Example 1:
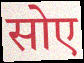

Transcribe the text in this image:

सोए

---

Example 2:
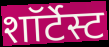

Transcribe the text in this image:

शॉर्टेस्ट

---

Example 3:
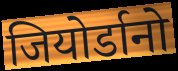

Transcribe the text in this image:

जियोर्डानो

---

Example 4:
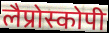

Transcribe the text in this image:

लैप्रोस्कोपी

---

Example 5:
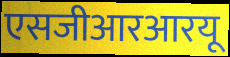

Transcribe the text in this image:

एसजीआरआरयू